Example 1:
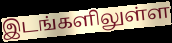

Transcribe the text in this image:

இடங்களிலுள்ள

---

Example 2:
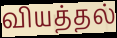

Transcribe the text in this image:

வியத்தல்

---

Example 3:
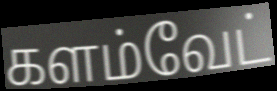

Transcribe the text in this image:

களம்வேட்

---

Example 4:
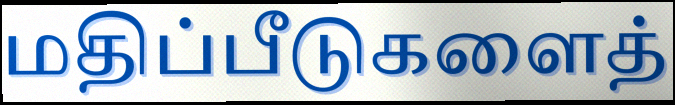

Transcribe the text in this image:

மதிப்பீடுகளைத்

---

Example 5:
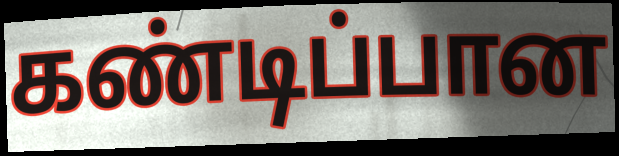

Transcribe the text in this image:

கண்டிப்பான